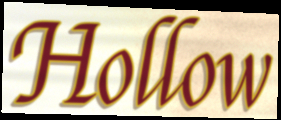
Hollow